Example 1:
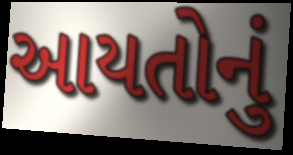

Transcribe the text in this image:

આયતોનું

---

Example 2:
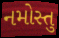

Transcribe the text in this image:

નમોસ્તુ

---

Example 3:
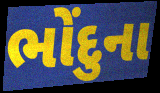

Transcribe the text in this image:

ભોંદુના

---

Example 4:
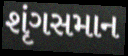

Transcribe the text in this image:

શૃંગસમાન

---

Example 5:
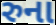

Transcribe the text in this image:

રુના